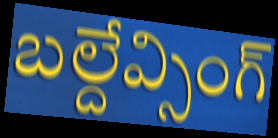
బల్దేవ్సింగ్